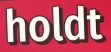
holdt